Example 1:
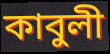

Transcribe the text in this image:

কাবুলী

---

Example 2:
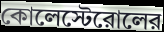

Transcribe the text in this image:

কোলেস্টেরোলের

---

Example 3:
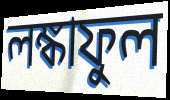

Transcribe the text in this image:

লঙ্কাফুল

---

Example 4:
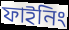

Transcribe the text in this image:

ফাইনিং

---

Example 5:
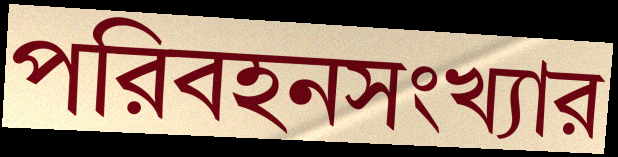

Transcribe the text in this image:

পরিবহনসংখ্যার